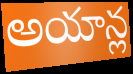
అయాన్ల